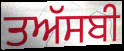
ਤਅੱਸਬੀ